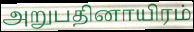
அறுபதினாயிரம்